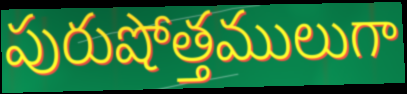
పురుషోత్తములుగా